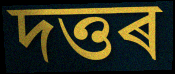
দত্তৰ